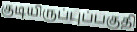
குடியிருப்புப்பகுதி